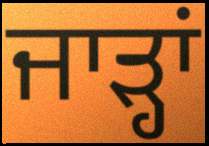
ਜਾੜ੍ਹਾਂ